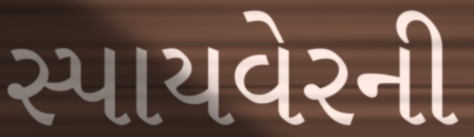
સ્પાયવેરની